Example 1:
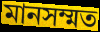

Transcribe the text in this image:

মানসম্মত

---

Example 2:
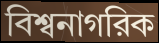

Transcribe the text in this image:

বিশ্বনাগরিক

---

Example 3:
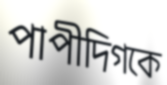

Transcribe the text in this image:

পাপীদিগকে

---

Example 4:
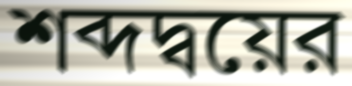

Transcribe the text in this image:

শব্দদ্বয়ের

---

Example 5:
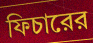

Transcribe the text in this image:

ফিচারের